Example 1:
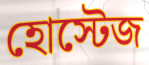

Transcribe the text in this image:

হোস্টেজ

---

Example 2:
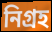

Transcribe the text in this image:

নিগ্রহ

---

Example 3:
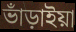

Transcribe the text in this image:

ভাঁড়াইয়া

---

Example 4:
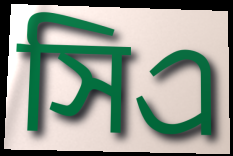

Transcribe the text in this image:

সিএ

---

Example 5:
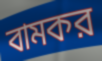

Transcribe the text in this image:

বামকর